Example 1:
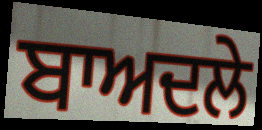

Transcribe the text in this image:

ਬਾਅਦਲੇ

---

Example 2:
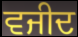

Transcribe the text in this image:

ਵਜੀਦ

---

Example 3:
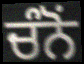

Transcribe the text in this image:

ਚੰਨੋਂ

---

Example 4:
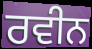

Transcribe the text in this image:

ਰਵੀਨ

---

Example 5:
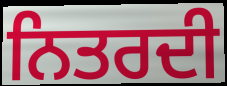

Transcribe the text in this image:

ਨਿਤਰਦੀ